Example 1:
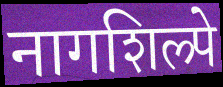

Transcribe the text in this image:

नागशिल्पे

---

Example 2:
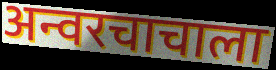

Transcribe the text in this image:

अन्वरचाचाला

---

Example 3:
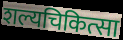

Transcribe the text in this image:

शल्‍यचिकित्‍सा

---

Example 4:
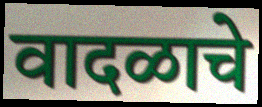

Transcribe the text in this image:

वादळाचे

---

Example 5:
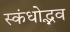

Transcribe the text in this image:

स्कंधोद्भव